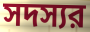
সদস্যর